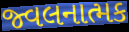
જ્વલનાત્મક